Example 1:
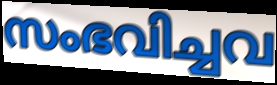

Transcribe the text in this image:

സംഭവിച്ചവ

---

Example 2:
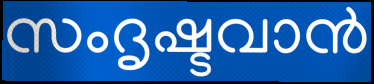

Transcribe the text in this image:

സംദൃഷ്ടവാൻ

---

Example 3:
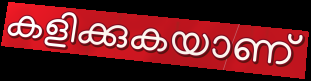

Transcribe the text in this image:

കളിക്കുകയാണ്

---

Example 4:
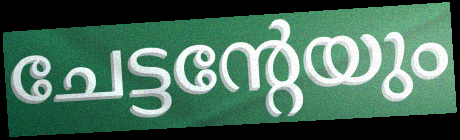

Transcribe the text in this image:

ചേട്ടന്റേയും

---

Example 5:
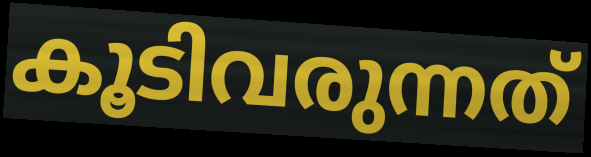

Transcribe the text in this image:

കൂടിവരുന്നത്